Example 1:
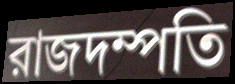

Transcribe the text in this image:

রাজদম্পতি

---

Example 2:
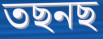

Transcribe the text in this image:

তছনছ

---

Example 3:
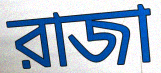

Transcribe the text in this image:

রাজা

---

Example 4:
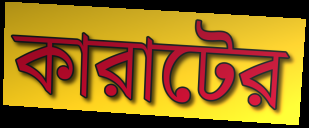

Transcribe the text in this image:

কারাটের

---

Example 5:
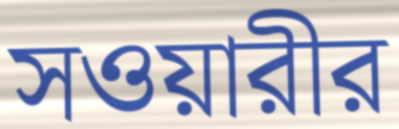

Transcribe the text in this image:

সওয়ারীর